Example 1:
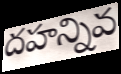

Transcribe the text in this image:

దహన్నివ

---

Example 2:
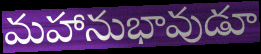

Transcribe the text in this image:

మహానుభావుడూ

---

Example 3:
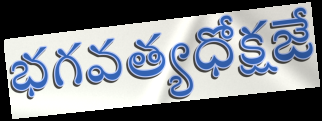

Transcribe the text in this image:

భగవత్యధోక్షజే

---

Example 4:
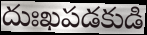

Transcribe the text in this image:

దుఃఖపడకుడి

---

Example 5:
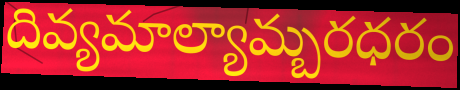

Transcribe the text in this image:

దివ్యమాల్యామ్బరధరం